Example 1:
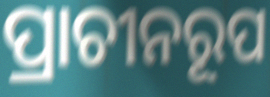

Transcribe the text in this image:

ପ୍ରାଚୀନରୂପ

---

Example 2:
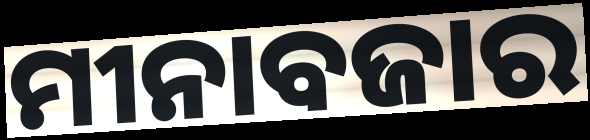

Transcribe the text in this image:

ମୀନାବଜାର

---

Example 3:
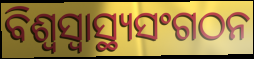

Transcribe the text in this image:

ବିଶ୍ଵସ୍ଵାସ୍ଥ୍ୟସଂଗଠନ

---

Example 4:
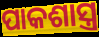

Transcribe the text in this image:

ପାକଶାସ୍ତ୍ର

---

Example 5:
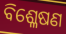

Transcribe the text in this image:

ବିଶ୍ଳେଷଣ